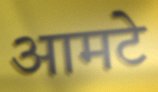
आमटे